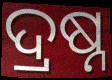
ଦ୍ରଷ୍ନ